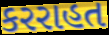
કરરાહત